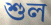
শুল